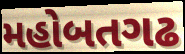
મહોબતગઢ